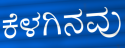
ಕೆಳಗಿನವು